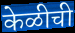
केळीची